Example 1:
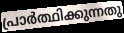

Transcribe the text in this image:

പ്രാർത്ഥിക്കുന്നതു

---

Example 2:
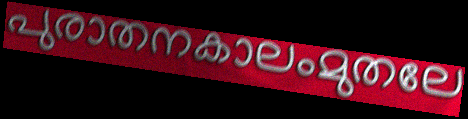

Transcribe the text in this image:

പുരാതനകാലംമുതലേ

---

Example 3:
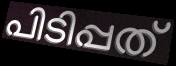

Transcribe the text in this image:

പിടിപ്പത്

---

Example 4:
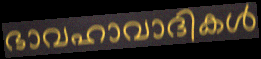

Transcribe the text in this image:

ഭാവഹാവാദികൾ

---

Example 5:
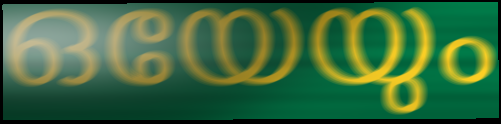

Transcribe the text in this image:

ഒയേയും